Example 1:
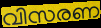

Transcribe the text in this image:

വിസരണ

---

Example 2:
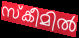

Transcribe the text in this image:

സ്കീമിൽ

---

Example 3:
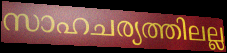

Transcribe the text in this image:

സാഹചര്യത്തിലല്ല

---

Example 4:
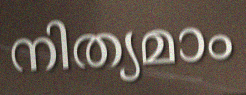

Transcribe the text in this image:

നിത്യമാം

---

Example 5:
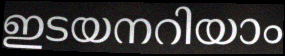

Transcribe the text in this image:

ഇടയനറിയാം